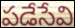
పడేసేవి